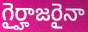
గైర్హాజరైనా